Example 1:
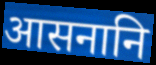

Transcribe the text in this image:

आसनानि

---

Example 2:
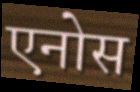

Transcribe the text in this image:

एनोस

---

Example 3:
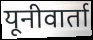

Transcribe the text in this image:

यूनीवार्ता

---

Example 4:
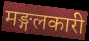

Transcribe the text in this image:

मङ्गलकारी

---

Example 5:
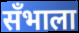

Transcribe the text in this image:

सँभाला